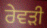
ਰੇਵੜੀ